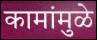
कामांमुळे